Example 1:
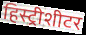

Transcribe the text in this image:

हिस्ट्रीशीटर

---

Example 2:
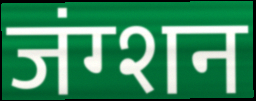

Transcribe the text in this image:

जंग्शन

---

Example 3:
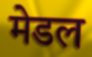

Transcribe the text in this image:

मेडल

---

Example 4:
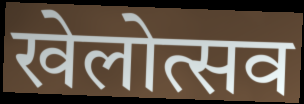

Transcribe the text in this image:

खेलोत्सव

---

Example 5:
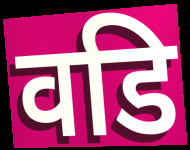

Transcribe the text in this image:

वडि